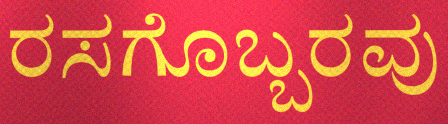
ರಸಗೊಬ್ಬರವು